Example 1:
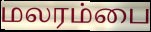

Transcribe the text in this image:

மலரம்பை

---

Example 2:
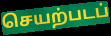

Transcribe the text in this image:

செயற்படப்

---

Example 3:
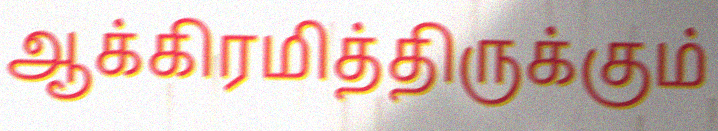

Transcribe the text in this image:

ஆக்கிரமித்திருக்கும்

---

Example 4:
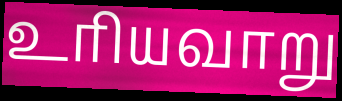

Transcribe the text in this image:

உரியவாறு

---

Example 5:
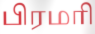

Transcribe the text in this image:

பிரமரி